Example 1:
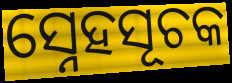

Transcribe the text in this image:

ସ୍ନେହସୂଚକ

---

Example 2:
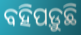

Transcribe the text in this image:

ବହିପଡ଼ୁଛି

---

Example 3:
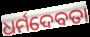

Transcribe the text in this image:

ଧର୍ମଦେବତା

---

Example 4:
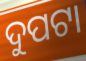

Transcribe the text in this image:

ଦୁପଟା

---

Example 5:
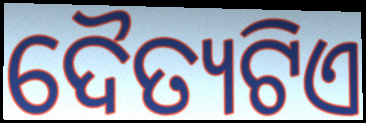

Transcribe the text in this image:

ଦୈତ୍ୟଟିଏ